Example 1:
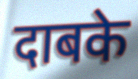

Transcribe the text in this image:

दाबके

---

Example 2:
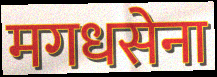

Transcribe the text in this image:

मगधसेना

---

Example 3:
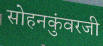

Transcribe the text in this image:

सोहनकुंवरजी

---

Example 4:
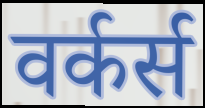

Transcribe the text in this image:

वर्कर्स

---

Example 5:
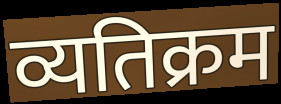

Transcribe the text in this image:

व्यतिक्रम